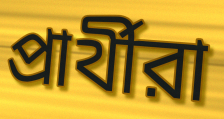
প্রার্থীরা